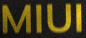
MIUI